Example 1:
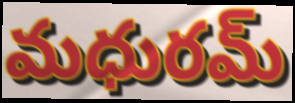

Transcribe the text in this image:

మధురమ్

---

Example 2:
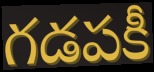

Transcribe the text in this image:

గడపకీ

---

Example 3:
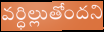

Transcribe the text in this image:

వర్ధిల్లుతోందని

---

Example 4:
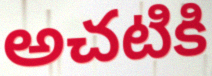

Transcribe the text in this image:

అచటికి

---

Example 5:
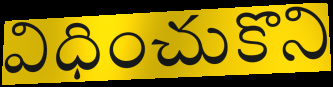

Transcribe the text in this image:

విధించుకొని